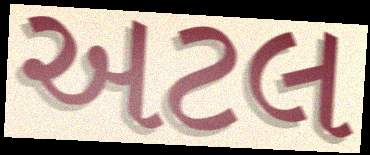
અટલ